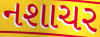
નશાચર